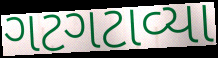
ગટગટાવ્યા